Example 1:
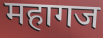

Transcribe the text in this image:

महागज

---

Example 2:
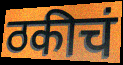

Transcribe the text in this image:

ठकीचं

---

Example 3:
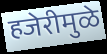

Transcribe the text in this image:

हजेरीमुळे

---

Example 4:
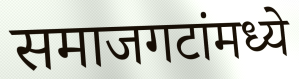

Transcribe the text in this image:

समाजगटांमध्ये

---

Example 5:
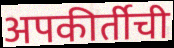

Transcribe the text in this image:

अपकीर्तीची